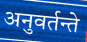
अनुवर्तन्ते